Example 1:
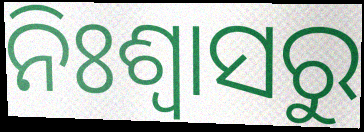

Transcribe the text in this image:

ନିଃଶ୍ବାସରୁ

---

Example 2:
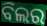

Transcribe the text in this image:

ବିଲର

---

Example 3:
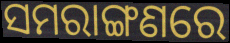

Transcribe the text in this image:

ସମରାଙ୍ଗଣରେ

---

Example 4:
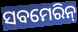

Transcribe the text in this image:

ସବମେରିନ୍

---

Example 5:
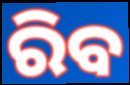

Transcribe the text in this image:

ରିବ